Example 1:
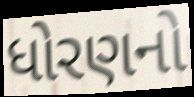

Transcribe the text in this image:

ધોરણનો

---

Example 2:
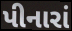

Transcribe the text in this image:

પીનારાં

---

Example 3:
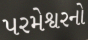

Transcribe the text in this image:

પરમેશ્વરનો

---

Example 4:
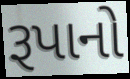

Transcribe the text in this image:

રૂપાનો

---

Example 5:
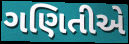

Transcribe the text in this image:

ગણિતીએ